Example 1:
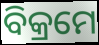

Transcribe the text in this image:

ବିକ୍ରମେ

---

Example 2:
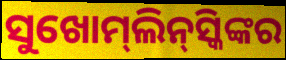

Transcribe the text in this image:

ସୁଖୋମ୍‍ଲିନ୍‍ସ୍କିଙ୍କର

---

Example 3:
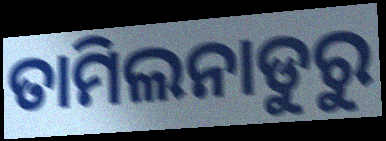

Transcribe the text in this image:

ତାମିଲନାଡୁରୁ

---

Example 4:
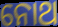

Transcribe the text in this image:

ନୋଥ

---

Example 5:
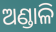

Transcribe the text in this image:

ଅଣ୍ଡାଳି